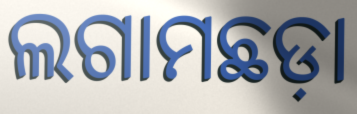
ଲଗାମଛଡ଼ା